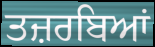
ਤਜ਼ਰਬਿਆਂ